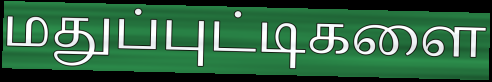
மதுப்புட்டிகளை